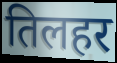
तिलहर